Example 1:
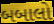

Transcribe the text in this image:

બબાલો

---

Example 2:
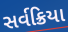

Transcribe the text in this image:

સર્વક્રિયા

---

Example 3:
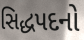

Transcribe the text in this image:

સિદ્ધપદનો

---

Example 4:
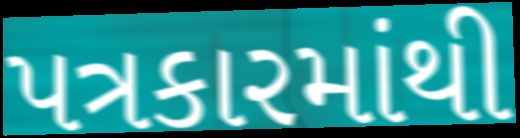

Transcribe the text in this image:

પત્રકારમાંથી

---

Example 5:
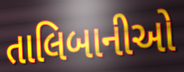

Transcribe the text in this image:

તાલિબાનીઓ